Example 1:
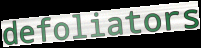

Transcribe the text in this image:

defoliators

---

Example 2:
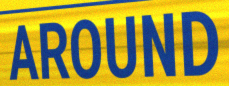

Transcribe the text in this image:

AROUND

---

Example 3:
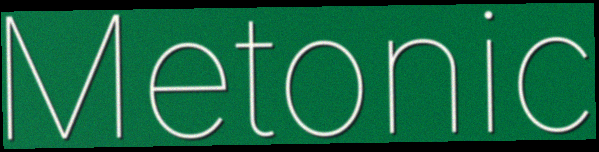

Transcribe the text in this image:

Metonic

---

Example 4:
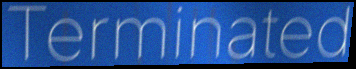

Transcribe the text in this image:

Terminated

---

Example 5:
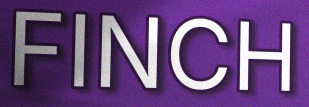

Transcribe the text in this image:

FINCH